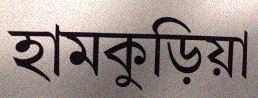
হামকুড়িয়া